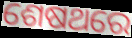
ଶେଷଥରେ